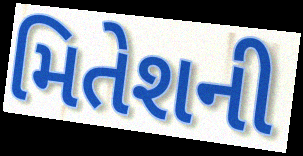
મિતેશની